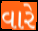
વારે